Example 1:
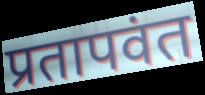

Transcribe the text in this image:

प्रतापवंत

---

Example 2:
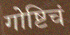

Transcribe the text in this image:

गोष्टिचं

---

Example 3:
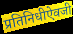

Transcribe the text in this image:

प्रतिनिधीऐवजी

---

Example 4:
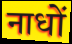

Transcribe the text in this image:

नाधों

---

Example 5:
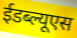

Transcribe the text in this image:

ईडब्ल्यूएस